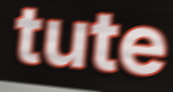
tute